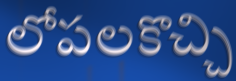
లోపలకొచ్చి